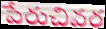
పేరుచివర